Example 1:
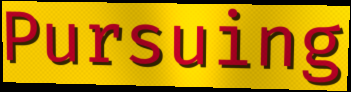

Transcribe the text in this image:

Pursuing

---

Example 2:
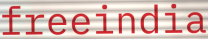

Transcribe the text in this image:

freeindia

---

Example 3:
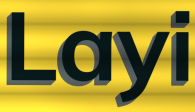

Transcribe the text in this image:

Layi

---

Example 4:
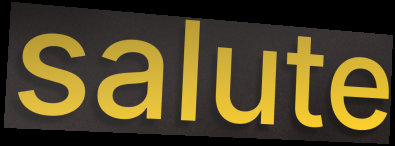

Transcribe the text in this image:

salute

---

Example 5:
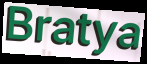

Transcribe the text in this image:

Bratya